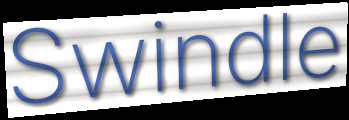
Swindle